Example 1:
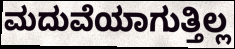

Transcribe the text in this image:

ಮದುವೆಯಾಗುತ್ತಿಲ್ಲ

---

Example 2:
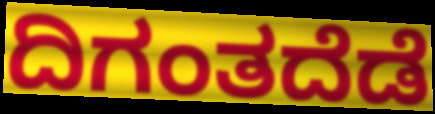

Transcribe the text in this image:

ದಿಗಂತದೆಡೆ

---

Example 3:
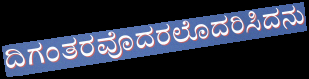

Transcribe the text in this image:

ದಿಗಂತರವೊದರಲೊದರಿಸಿದನು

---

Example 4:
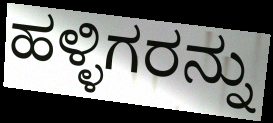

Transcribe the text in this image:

ಹಳ್ಳಿಗರನ್ನು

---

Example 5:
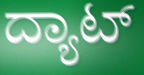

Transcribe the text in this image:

ದ್ಯಾಟ್